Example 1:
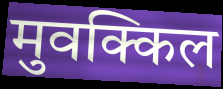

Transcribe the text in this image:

मुवक्किल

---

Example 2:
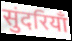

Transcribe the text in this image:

सुंदरियाँ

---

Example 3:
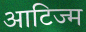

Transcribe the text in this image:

आटिज्म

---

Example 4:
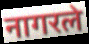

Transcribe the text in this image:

नागरले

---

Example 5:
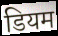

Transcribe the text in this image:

डियम